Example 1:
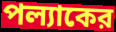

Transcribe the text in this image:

পল্যাকের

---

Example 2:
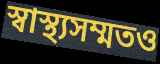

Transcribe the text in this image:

স্বাস্থ্যসম্মতও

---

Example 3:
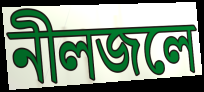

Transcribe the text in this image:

নীলজলে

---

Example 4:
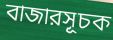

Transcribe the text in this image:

বাজারসূচক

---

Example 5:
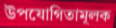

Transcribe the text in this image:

উপযোগিতামূলক